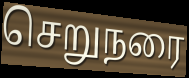
செறுநரை